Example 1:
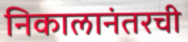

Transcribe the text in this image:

निकालानंतरची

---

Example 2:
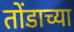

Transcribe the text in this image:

तोंडाच्या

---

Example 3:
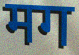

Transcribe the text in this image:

मग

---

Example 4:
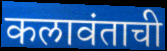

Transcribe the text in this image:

कलावंताची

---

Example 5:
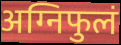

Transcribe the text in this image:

अग्निफुलं